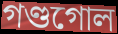
গণ্ডগোল